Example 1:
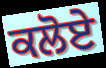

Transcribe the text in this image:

ਕਲੋਏ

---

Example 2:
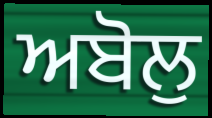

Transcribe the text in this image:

ਅਬੋਲੁ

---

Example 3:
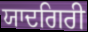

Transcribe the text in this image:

ਯਾਦਗਿਰੀ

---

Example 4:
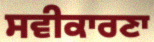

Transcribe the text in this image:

ਸਵੀਕਾਰਣਾ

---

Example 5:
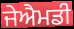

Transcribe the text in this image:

ਜੇਐਮਡੀ